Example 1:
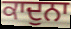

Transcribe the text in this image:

ਕਾਦੁਨਾ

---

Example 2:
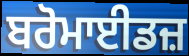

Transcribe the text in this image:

ਬਰੋਮਾਈਡਜ਼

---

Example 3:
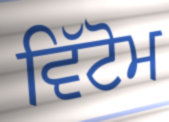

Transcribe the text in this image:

ਵਿੱਟੋਮ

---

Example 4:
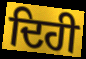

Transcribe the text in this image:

ਦਿਹੀ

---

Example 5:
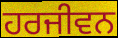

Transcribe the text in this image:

ਹਰਜੀਵਨ